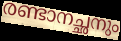
രണ്ടാനച്ഛനും